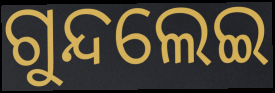
ଗୁନ୍ଦଲେଇ